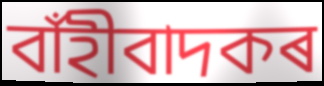
বাঁহীবাদকৰ